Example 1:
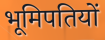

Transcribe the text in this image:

भूमिपतियों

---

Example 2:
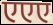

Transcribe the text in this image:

एएए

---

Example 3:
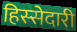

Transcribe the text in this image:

हिस्‍सेदारी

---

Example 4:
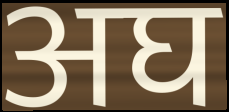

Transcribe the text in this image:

अघ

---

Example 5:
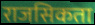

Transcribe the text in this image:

राजसिकता